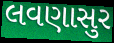
લવણાસુર